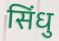
सिंधु